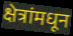
क्षेत्रांमधून